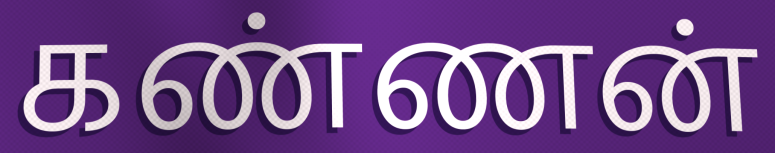
கண்ணன்